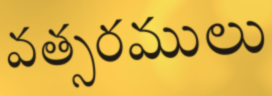
వత్సరములు